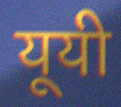
यूयी